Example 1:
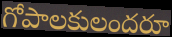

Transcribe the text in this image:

గోపాలకులందరూ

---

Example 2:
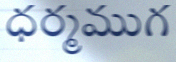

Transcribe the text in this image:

ధర్మముగ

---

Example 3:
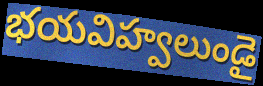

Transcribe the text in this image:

భయవిహ్వలుండై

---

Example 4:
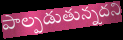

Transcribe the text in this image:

పాల్పడుతున్నదని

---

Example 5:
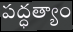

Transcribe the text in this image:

పద్ధత్యాం